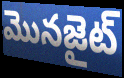
మొనజైట్